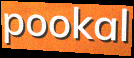
pookal